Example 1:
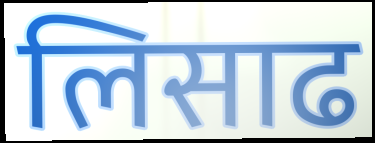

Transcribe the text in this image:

लिसाढ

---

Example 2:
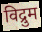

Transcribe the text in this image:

विद्रुम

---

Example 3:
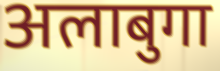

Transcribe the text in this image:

अलाबुगा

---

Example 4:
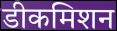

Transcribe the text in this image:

डीकमिशन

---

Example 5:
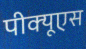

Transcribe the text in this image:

पीक्यूएस